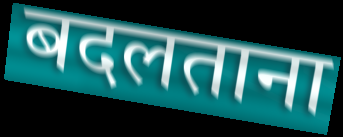
बदलताना